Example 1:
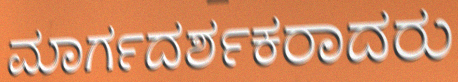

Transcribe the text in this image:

ಮಾರ್ಗದರ್ಶಕರಾದರು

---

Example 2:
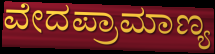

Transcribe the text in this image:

ವೇದಪ್ರಾಮಾಣ್ಯ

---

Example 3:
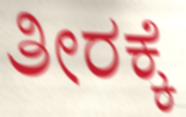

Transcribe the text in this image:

ತೀರಕ್ಕೆ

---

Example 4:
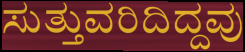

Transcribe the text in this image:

ಸುತ್ತುವರಿದಿದ್ದವು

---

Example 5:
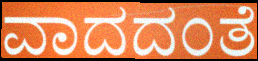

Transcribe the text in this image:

ವಾದದಂತೆ